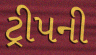
ટ્રીપની